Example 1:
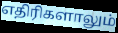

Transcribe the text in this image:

எதிரிகளாலும்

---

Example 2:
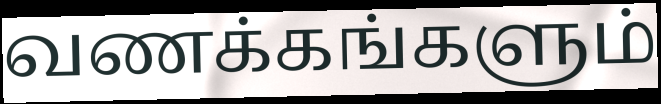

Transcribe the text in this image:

வணக்கங்களும்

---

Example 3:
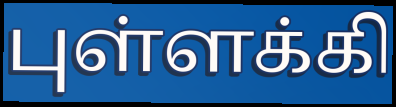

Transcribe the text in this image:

புள்ளக்கி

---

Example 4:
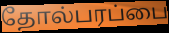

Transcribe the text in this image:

தோல்பரப்பை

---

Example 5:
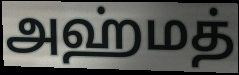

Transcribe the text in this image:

அஹ்மத்